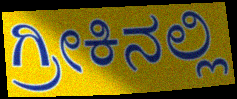
ಗ್ರೀಕಿನಲ್ಲಿ